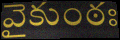
వైకుంఠః